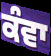
ਕੰਵਾ